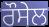
ਰੌਸੇਲ